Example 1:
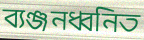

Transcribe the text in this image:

ব্যঞ্জনধ্বনিত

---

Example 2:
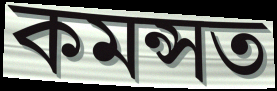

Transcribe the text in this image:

কমন্সত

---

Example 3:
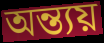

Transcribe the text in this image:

অন্ত্যয়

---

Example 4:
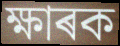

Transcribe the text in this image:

ক্ষাৰক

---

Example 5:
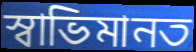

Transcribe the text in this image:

স্বাভিমানত